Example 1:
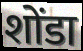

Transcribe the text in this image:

शोंडा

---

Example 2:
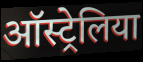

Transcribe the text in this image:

ऑस्‍ट्रेलिया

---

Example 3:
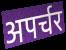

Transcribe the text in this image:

अपर्चर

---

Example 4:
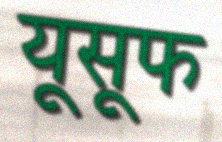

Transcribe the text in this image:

यूसूफ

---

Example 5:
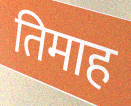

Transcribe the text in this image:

तिमाह